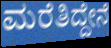
ಮರೆತಿದ್ದೇನೆ